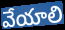
వేయాలి